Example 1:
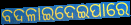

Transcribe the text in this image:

ବଦଳାଇଦେଇପାରେ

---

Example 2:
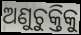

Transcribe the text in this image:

ଅଣୁଚୁକ୍ତିକୁ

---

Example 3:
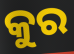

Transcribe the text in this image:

କୁର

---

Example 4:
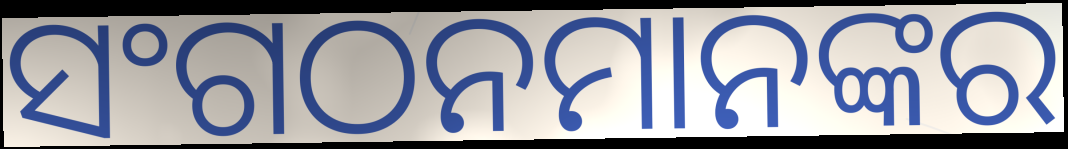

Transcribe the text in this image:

ସଂଗଠନମାନଙ୍କର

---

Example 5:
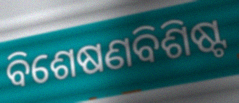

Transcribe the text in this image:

ବିଶେଷଣବିଶିଷ୍ଟ